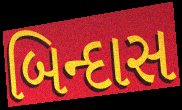
બિન્દાસ